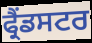
ਫ੍ਰੈਂਡਸਟਰ